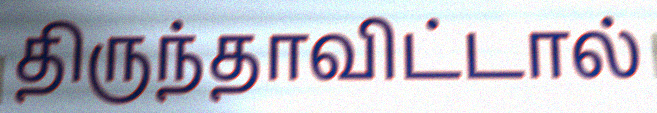
திருந்தாவிட்டால்